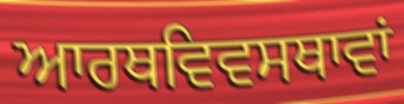
ਆਰਥਵਿਵਸਥਾਵਾਂ